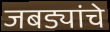
जबड्यांचे